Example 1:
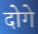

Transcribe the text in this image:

दोगे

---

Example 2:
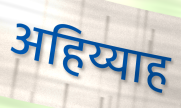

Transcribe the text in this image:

अहिय्याह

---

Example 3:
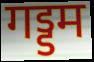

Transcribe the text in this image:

गड्डम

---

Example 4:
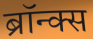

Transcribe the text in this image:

ब्रॉन्क्स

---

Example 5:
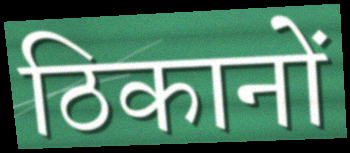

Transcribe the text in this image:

ठिकानों